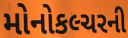
મોનોકલ્ચરની